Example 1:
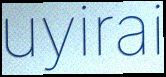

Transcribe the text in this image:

uyirai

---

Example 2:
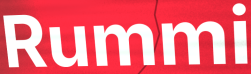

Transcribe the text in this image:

Rummi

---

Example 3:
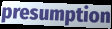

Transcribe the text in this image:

presumption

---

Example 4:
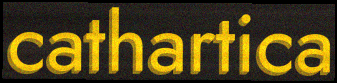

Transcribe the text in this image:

cathartica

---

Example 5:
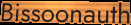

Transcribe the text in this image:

Bissoonauth